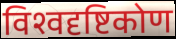
विश्वदृष्टिकोण